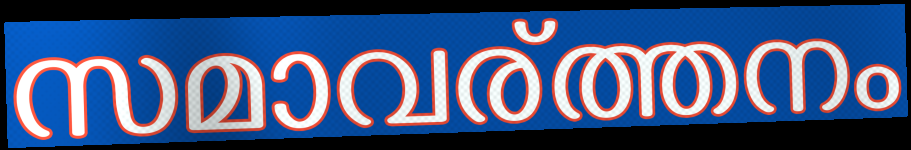
സമാവര്ത്തനം